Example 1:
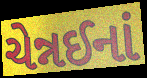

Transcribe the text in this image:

ચેન્નઈનાં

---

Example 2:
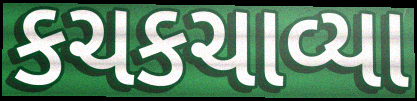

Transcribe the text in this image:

કચકચાવ્યા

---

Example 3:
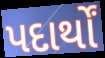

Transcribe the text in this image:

પદાર્થોં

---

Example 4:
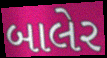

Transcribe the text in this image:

બાલેર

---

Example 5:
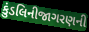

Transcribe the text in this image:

કુંડલિનીજાગરણની